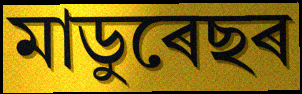
মাডুৰেছৰ